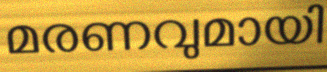
മരണവുമായി